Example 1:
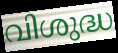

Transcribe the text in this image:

വിശുദ്ധ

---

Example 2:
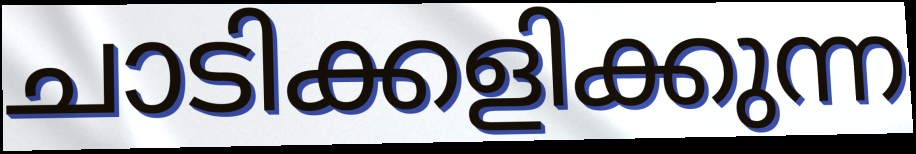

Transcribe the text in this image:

ചാടിക്കളിക്കുന്ന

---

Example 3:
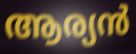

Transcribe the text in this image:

ആര്യൻ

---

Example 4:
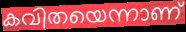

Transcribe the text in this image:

കവിതയെന്നാണ്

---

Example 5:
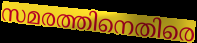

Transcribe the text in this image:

സമരത്തിനെതിരെ